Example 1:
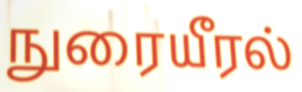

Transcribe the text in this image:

நுரையீரல்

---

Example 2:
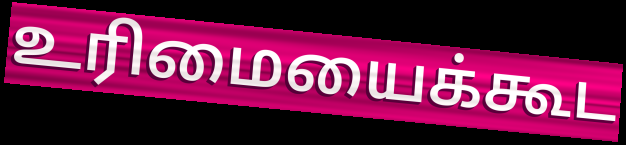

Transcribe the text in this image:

உரிமையைக்கூட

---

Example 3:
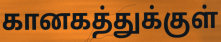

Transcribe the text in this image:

கானகத்துக்குள்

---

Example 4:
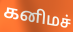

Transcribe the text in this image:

கனிமச்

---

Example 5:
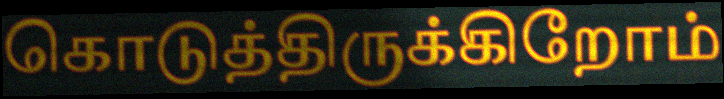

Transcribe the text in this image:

கொடுத்திருக்கிறோம்